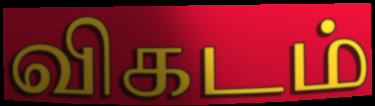
விகடம்